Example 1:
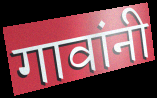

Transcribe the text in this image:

गावांनी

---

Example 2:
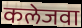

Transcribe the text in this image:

कलेजवा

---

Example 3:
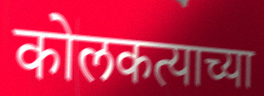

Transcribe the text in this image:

कोलकत्याच्या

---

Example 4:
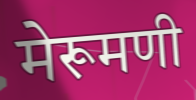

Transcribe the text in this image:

मेरूमणी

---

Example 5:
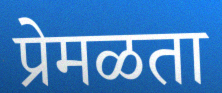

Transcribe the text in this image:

प्रेमळता